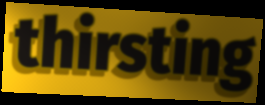
thirsting